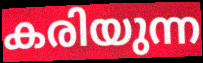
കരിയുന്ന